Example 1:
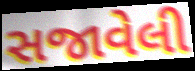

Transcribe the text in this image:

સજાવેલી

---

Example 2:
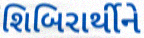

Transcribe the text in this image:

શિબિરાર્થીને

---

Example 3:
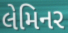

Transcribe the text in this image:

લેમિનર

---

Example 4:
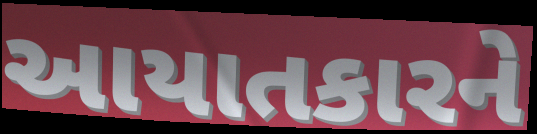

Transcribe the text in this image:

આયાતકારને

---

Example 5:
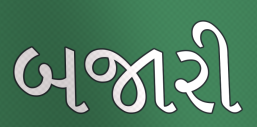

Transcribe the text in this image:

બજારી